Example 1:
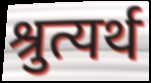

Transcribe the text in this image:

श्रुत्यर्थ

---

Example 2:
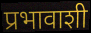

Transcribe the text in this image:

प्रभावाशी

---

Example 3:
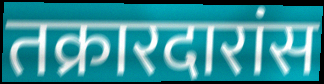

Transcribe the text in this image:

तक्रारदारांस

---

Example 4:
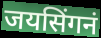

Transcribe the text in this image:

जयसिंगनं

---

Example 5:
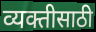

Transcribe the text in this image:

व्यक्तीसाठी